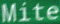
Mite